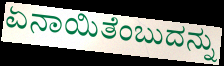
ಏನಾಯಿತೆಂಬುದನ್ನು